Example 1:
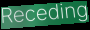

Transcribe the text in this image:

Receding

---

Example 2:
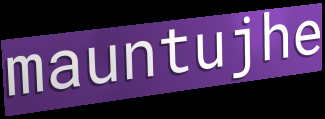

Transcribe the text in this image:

mauntujhe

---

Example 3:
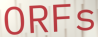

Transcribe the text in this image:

ORFs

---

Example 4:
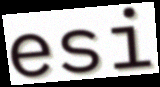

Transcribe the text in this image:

esi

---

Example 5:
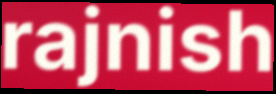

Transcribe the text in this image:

rajnish